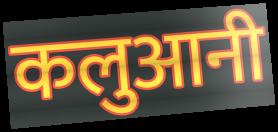
कलुआनी